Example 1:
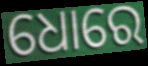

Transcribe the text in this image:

ଧୋରେ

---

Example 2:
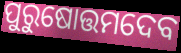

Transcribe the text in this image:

ପୁରୁଷୋତ୍ତମଦେବ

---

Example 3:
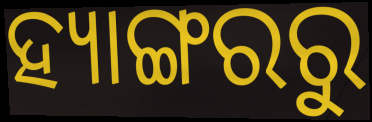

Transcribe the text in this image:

ହ୍ୟାଙ୍ଗରରୁ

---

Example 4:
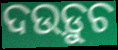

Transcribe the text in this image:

ଦଉଡ଼ୁଚ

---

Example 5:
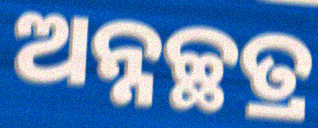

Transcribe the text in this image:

ଅନ୍ନଚ୍ଛତ୍ର